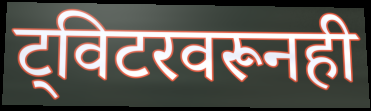
ट्विटरवरूनही